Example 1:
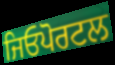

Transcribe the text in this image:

ਜਿਓਪੋਰਟਲ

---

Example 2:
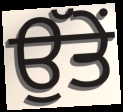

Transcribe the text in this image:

ਉੱਤੇਂ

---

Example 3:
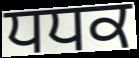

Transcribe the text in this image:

ਧਧਕ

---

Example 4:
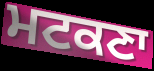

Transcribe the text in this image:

ਮਟਕਣਾ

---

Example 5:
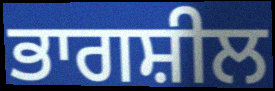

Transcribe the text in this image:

ਭਾਗਸ਼ੀਲ